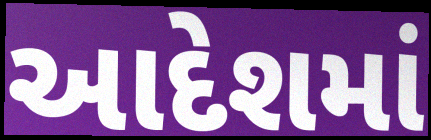
આદેશમાં